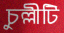
চুল্লীটি